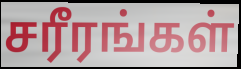
சரீரங்கள்